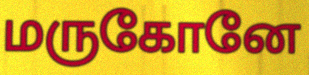
மருகோனே